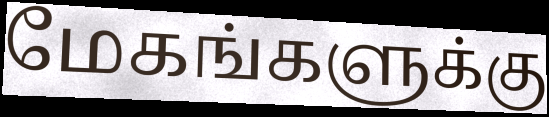
மேகங்களுக்கு